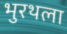
भुरथला